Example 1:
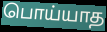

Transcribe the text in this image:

பொய்யாத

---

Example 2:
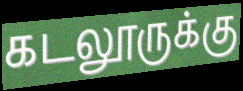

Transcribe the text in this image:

கடலூருக்கு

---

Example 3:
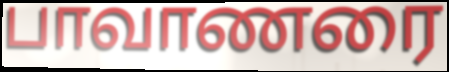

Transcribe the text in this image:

பாவாணரை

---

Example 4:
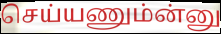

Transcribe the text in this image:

செய்யணும்ன்னு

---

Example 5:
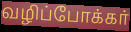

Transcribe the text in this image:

வழிப்போக்கர்